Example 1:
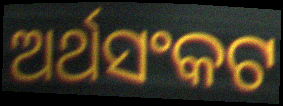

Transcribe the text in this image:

ଅର୍ଥସଂକଟ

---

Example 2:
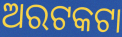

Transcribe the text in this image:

ଅରଟକଟା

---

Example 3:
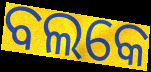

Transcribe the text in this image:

ବଲକେ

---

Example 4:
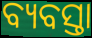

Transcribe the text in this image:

ବ୍ୟବସ୍ତା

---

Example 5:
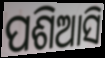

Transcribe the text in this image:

ପଶିଆସି